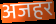
अजहर